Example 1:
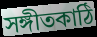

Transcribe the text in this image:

সঙ্গীতকাঠি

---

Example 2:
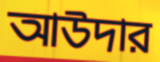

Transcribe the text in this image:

আউদার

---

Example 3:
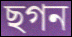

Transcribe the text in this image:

ছগন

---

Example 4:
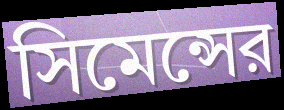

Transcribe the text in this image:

সিমেন্সের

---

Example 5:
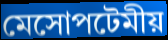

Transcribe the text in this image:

মেসোপটেমীয়